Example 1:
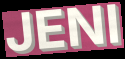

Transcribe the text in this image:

JENI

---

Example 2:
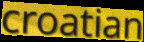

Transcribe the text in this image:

croatian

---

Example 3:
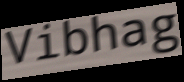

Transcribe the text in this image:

Vibhag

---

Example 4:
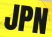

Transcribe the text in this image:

JPN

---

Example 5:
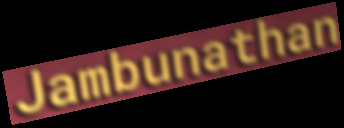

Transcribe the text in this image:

Jambunathan